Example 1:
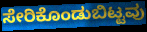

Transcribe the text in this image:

ಸೇರಿಕೊಂಡುಬಿಟ್ಟವು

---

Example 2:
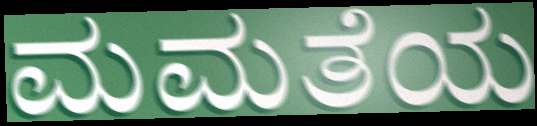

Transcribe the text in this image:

ಮಮತೆಯ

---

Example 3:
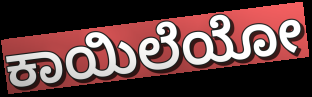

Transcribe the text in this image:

ಕಾಯಿಲೆಯೋ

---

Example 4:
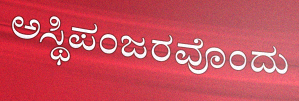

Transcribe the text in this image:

ಅಸ್ಥಿಪಂಜರವೊಂದು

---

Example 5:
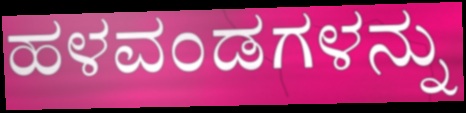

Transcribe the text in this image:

ಹಳವಂಡಗಳನ್ನು